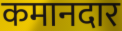
कमानदार